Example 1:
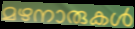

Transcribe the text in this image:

മഴനാരുകൾ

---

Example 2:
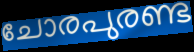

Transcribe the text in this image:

ചോരപുരണ്ട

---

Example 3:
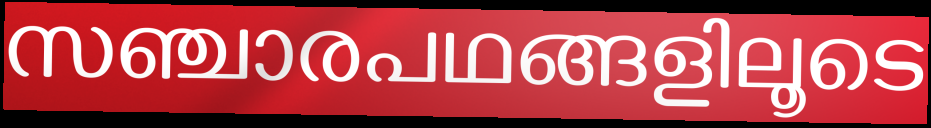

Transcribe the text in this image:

സഞ്ചാരപഥങ്ങളിലൂടെ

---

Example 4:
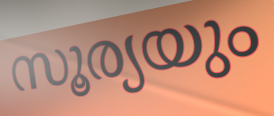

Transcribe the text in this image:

സൂര്യയും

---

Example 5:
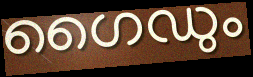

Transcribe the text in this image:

ഗൈഡും